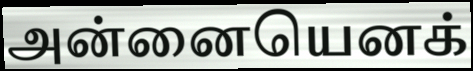
அன்னையெனக்